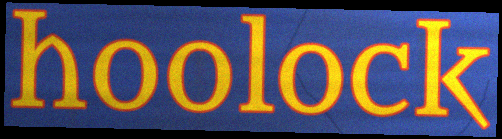
hoolock